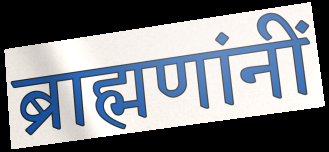
ब्राह्मणांनीं